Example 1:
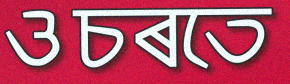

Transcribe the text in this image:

ওচৰতে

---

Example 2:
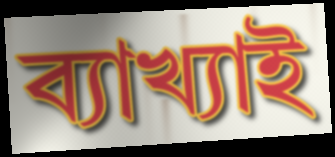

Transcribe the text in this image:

ব্যাখ্যাই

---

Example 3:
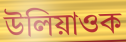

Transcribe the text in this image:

উলিয়াওক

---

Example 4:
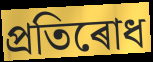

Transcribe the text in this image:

প্ৰতিৰোধ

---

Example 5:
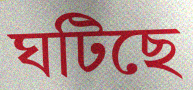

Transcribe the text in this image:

ঘটিছে